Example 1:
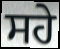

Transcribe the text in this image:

ਸਹੇ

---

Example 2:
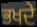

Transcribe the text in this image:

ਭਖਦੇ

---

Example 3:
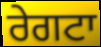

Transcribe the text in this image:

ਰੇਗਟਾ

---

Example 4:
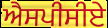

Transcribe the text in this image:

ਐਸਪੀਸੀਏ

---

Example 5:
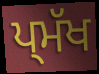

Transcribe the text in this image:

ਪ੍ਮੱਖ